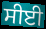
ਸੀਈ